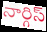
నార్గిస్